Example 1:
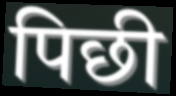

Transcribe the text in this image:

पिछी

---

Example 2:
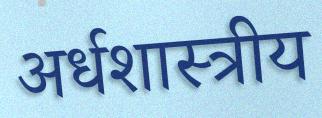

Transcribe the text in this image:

अर्धशास्त्रीय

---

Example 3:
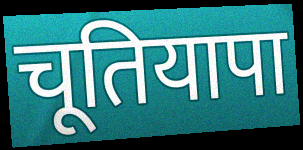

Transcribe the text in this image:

चूतियापा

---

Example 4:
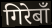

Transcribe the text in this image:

गिरेबाँ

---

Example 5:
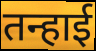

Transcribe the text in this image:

तन्हाई